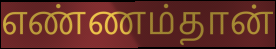
எண்ணம்தான்